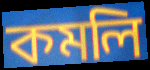
কমলি